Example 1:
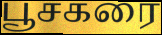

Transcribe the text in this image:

பூசகரை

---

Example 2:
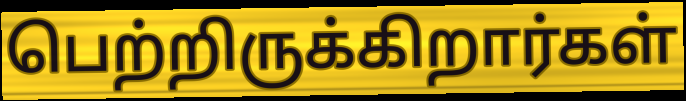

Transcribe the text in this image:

பெற்றிருக்கிறார்கள்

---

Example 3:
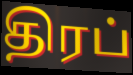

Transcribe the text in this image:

திரப்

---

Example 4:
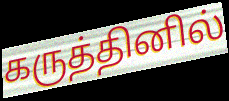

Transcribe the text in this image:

கருத்தினில்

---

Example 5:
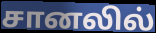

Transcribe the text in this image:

சானலில்